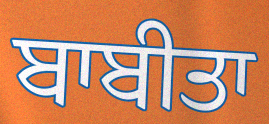
ਬਾਬੀਤਾ